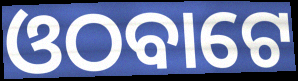
ଓଠବାଟେ